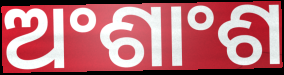
ଅଂଶାଂଶ